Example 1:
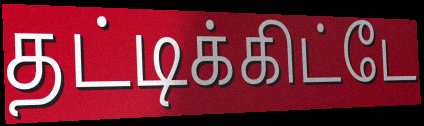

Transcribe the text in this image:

தட்டிக்கிட்டே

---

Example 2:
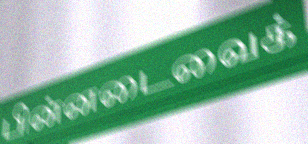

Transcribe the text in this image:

பின்னடைவைக்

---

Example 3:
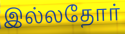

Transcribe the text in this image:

இல்லதோர்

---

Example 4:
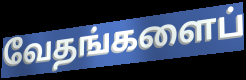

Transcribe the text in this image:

வேதங்களைப்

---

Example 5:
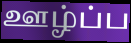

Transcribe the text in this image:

ஊழ்ப்ப